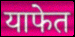
याफेत